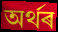
অৰ্থৰ